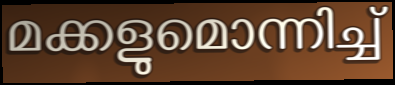
മക്കളുമൊന്നിച്ച്